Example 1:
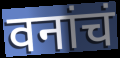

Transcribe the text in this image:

वनांचं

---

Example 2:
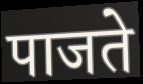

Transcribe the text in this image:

पाजते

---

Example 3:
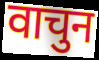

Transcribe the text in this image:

वाचुन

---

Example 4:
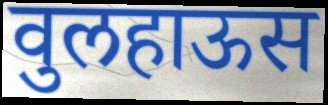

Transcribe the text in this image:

वुलहाऊस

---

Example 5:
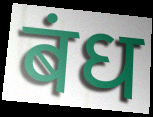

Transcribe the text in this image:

बंध